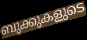
ബുക്കുകളുടെ